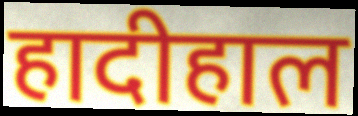
हादीहाल